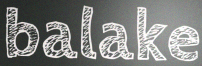
balake